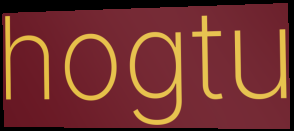
hogtu